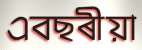
এবছৰীয়া